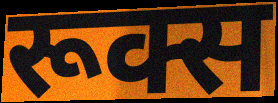
रूक्स